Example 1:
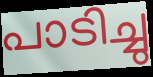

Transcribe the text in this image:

പാടിച്ചു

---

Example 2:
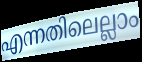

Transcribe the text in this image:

എന്നതിലെല്ലാം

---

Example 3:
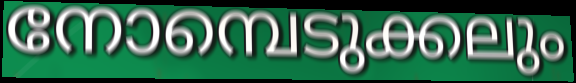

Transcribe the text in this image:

നോമ്പെടുക്കലും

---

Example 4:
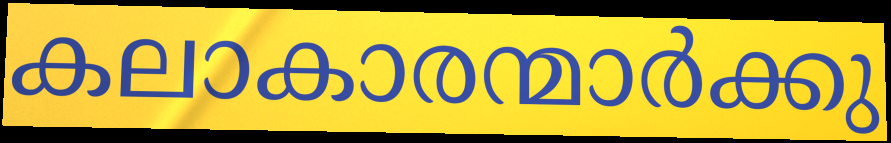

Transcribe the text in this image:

കലാകാരന്മാർക്കു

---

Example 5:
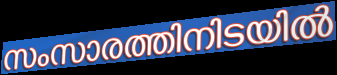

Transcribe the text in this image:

സംസാരത്തിനിടയിൽ